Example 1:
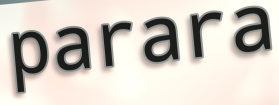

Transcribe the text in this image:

parara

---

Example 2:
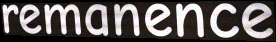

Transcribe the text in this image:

remanence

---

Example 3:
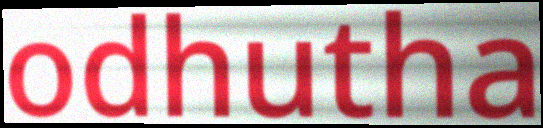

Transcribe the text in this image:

odhutha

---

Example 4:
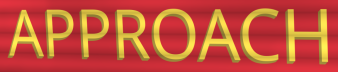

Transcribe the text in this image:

APPROACH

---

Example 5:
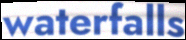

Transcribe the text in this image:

waterfalls